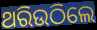
ଥରିଉଠିଲେ